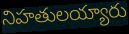
నిహతులయ్యారు